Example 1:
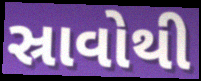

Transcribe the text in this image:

સ્રાવોથી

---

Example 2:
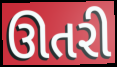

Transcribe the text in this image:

ઊતરી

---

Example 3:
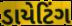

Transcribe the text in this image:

ડાયેટિંગ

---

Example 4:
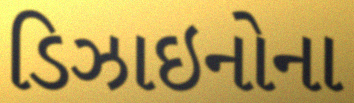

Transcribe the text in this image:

ડિઝાઇનોના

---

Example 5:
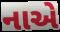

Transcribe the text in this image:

નાએ